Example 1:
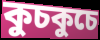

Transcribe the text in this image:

কুচকুচে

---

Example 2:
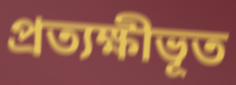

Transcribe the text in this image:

প্রত্যক্ষীভূত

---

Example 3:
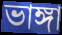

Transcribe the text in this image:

ভাঙ্গা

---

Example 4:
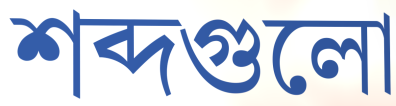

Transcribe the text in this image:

শব্দগুলো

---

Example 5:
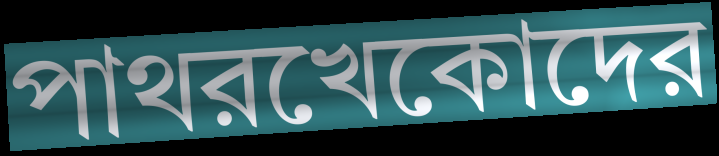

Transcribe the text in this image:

পাথরখেকোদের